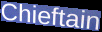
Chieftain